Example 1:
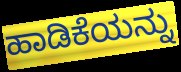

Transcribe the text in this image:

ಹಾಡಿಕೆಯನ್ನು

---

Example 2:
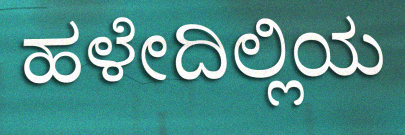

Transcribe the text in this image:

ಹಳೇದಿಲ್ಲಿಯ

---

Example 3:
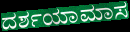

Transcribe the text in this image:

ದರ್ಶಯಾಮಾಸ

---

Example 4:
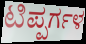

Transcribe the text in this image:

ಟಿಪ್ಪರ್ಗಳ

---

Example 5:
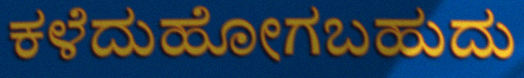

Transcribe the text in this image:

ಕಳೆದುಹೋಗಬಹುದು